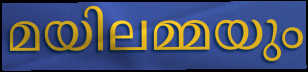
മയിലമ്മയും